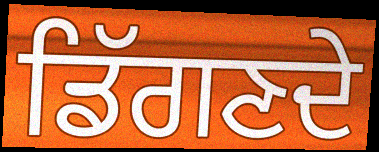
ਡਿੱਗਣਦੇ